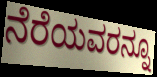
ನೆರೆಯವರನ್ನೂ